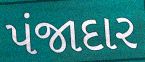
પંજાદાર